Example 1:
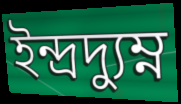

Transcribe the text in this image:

ইন্দ্রদ্যুম্ন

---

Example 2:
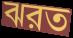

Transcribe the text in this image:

ঝরত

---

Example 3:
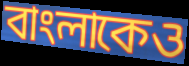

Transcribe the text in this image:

বাংলাকেও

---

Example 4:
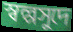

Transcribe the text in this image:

স্বল্পসুদে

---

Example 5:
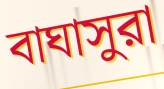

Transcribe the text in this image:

বাঘাসুরা